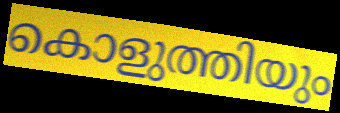
കൊളുത്തിയും